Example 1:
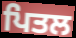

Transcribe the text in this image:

ਪਿਤਲ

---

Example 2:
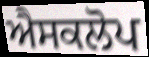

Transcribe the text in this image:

ਐਸਕਲੋਪ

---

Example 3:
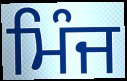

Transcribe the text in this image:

ਮਿੰਜ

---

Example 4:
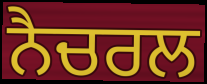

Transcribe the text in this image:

ਨੈਚਰਲ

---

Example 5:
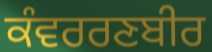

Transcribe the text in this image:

ਕੰਵਰਰਣਬੀਰ